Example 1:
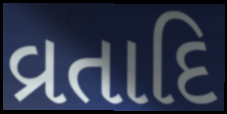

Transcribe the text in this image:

વ્રતાદિ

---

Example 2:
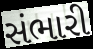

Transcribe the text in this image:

સંભારી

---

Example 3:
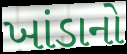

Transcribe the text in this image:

ખાંડાનો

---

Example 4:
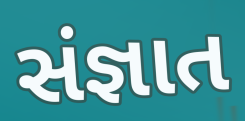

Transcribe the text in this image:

સંજ્ઞાત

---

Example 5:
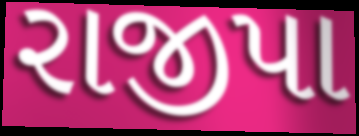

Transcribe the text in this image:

રાજીપા